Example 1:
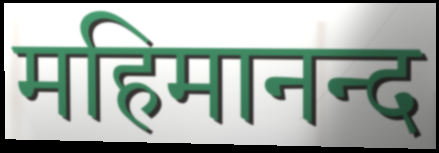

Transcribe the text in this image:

महिमानन्द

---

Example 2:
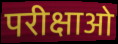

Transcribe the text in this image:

परीक्षाओ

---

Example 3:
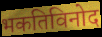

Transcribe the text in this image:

भकतिविनोद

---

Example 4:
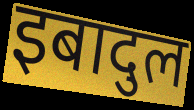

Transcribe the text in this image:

इबादुल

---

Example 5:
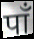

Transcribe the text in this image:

पाँ